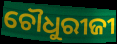
ଚୌଧୁରୀଜୀ